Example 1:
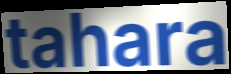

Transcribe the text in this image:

tahara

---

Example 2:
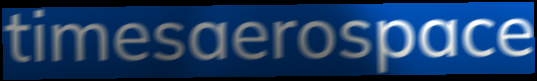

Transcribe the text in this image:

timesaerospace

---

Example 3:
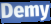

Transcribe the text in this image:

Demy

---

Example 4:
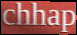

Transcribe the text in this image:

chhap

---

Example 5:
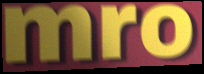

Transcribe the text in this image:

mro